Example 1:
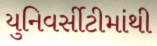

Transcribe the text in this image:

યુનિવર્સીટીમાંથી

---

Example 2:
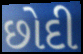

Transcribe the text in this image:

છોદી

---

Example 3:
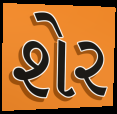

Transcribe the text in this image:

શેર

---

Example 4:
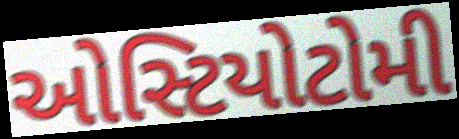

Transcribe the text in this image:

ઓસ્ટિયોટોમી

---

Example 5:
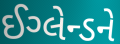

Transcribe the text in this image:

ઈગ્લેન્ડને